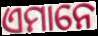
ଏମାନେ